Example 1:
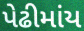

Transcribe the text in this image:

પેઢીમાંય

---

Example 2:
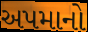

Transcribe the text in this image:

અપમાનો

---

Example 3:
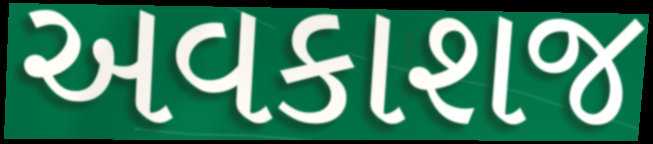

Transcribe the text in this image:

અવકાશજ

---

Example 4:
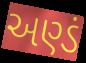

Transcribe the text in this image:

અણ્ડં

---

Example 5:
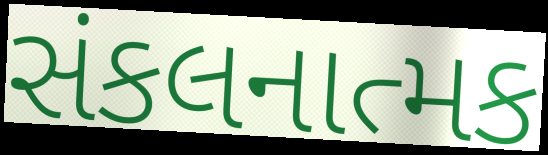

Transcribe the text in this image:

સંકલનાત્મક